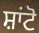
ਸ਼ਾਂਟੋ